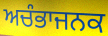
ਅਚੰਭਾਜਨਕ